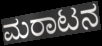
ಮರಾಟನ